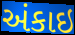
અંકાઇ